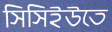
সিসিইউতে